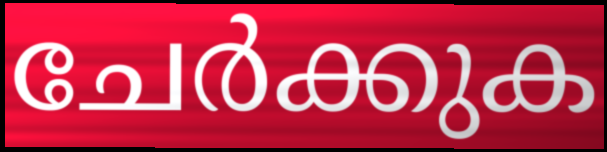
ചേർക്കുക